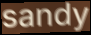
sandy